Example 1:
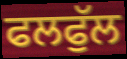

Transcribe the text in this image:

ਫਲਫੁੱਲ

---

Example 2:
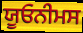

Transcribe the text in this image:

ਯੂਓਨੀਮਸ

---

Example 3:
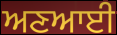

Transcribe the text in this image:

ਅਣਆਈ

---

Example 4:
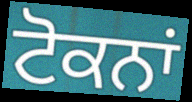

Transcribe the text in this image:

ਟੋਕਨਾਂ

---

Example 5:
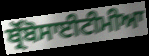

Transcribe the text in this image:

ਥ੍ਰੌਂਬੋਸਾਈਟੀਮੀਆ